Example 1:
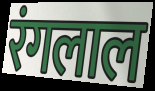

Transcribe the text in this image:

रंगलाल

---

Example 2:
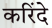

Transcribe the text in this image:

करिंदे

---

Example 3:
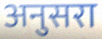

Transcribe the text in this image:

अनुसरा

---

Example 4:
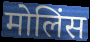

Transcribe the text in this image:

मोलिंस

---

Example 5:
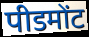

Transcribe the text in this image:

पीडमोंट